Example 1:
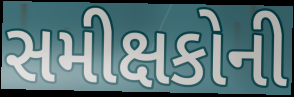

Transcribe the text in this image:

સમીક્ષકોની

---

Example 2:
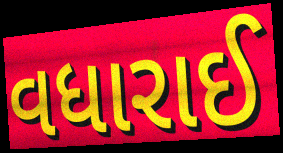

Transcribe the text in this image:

વધારાઈ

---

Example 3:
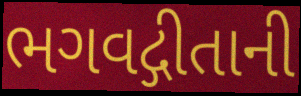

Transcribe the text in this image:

ભગવદ્ગીતાની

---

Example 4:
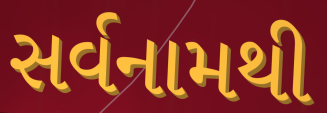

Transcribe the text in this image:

સર્વનામથી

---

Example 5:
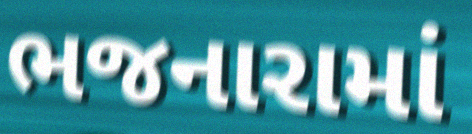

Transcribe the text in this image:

ભજનારામાં